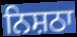
ਨਿਸ਼ਠਾ